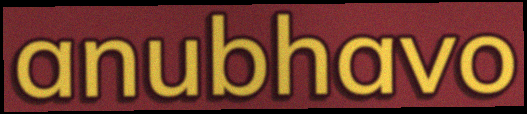
anubhavo